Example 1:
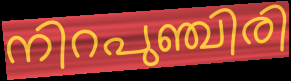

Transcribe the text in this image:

നിറപുഞ്ചിരി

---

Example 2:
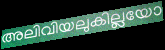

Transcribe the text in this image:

അലിവിയലുകില്ലയോ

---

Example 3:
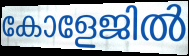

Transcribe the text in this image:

കോളേജിൽ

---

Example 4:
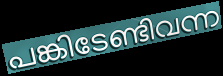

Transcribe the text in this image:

പങ്കിടേണ്ടിവന്ന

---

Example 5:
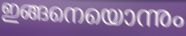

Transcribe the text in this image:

ഇങ്ങനെയൊന്നും